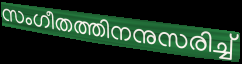
സംഗീതത്തിനനുസരിച്ച്